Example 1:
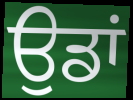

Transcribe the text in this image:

ਉਡਾਂ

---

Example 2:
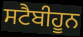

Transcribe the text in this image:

ਸਟੈਬੀਹੂਨ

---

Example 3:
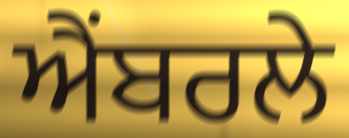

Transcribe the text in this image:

ਐਂਬਰਲੇ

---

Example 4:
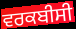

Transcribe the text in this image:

ਵਰਕਬੀਸੀ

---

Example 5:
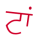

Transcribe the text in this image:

ਟਾਂ